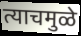
त्याचमुळे